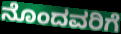
ನೊಂದವರಿಗೆ